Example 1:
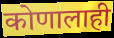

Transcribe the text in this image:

कोणालाही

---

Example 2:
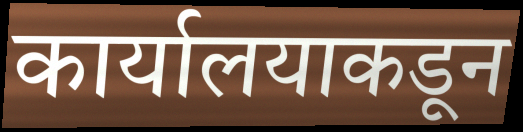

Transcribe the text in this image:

कार्यालयाकडून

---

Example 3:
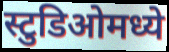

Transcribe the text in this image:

स्टुडिओमध्ये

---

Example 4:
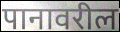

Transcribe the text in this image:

पानावरील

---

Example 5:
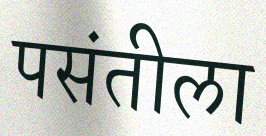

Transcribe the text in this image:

पसंतीला